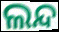
ଲନ୍ଦ